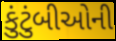
કુંટુંબીઓની